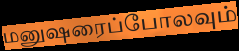
மனுஷரைப்போலவும்